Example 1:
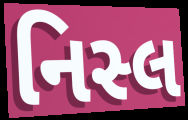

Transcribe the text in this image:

નિસ્લ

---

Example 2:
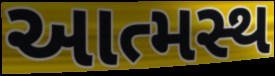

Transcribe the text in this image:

આત્મસ્થ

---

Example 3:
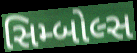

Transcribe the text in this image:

સિમ્બોલ્સ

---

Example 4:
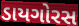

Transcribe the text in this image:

ડાયગોરસ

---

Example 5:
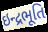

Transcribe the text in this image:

ઇન્દ્રભૂતિ